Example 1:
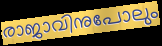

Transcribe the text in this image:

രാജാവിനുപോലും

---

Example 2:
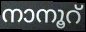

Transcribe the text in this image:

നാനൂറ്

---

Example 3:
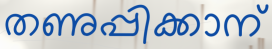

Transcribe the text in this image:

തണുപ്പിക്കാന്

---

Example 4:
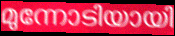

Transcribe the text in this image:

മുന്നോടിയായി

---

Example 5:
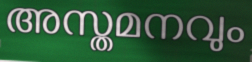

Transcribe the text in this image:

അസ്തമനവും